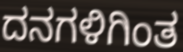
ದನಗಳಿಗಿಂತ